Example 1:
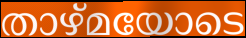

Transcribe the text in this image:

താഴ്മയോടെ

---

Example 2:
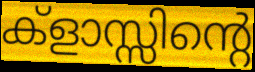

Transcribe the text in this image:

ക്ളാസ്സിന്റെ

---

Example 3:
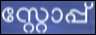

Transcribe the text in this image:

സ്റ്റോപ്പ്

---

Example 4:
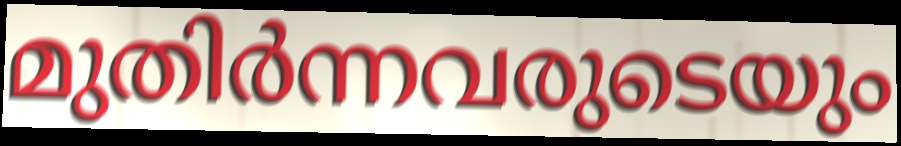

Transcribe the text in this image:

മുതിർന്നവരുടെയും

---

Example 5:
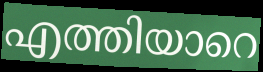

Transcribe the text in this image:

എത്തിയാറെ